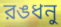
রঙধনু